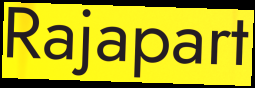
Rajapart